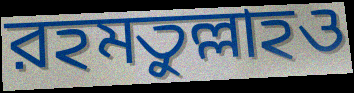
রহমতুল্লাহও